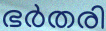
ഭർതരി